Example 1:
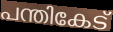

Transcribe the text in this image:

പന്തികേട്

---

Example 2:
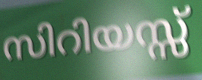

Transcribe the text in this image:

സിറിയസ്സ്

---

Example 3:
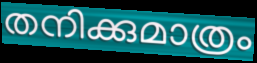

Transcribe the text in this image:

തനിക്കുമാത്രം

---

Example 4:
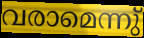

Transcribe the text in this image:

വരാമെന്നു്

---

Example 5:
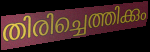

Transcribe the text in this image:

തിരിച്ചെത്തിക്കും